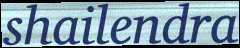
shailendra